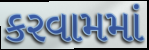
કરવામમાં